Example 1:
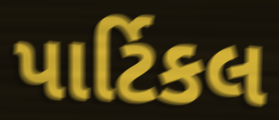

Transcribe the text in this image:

પાર્ટિકલ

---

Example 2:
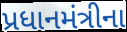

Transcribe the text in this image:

પ્રધાનમંત્રીના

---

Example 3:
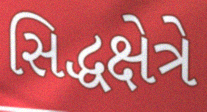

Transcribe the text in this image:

સિદ્ધક્ષેત્રે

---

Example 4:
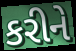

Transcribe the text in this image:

કરીને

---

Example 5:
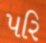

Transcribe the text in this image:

પરિ